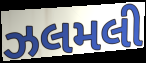
ઝલમલી